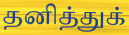
தனித்துக்